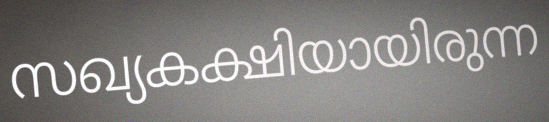
സഖ്യകക്ഷിയായിരുന്ന